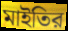
মাইতির